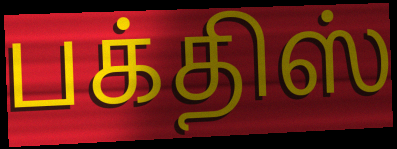
பக்திஸ்